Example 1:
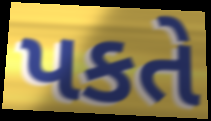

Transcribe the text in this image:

પકતે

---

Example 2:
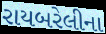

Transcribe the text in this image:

રાયબરેલીના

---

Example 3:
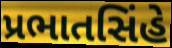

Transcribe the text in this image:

પ્રભાતસિંહે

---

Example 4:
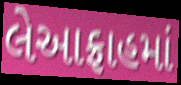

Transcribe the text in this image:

લેઆફ્રાહમાં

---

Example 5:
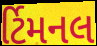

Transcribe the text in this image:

ર્ટિમનલ